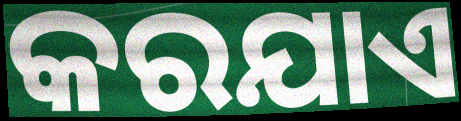
କରଯାଏ